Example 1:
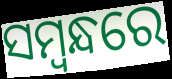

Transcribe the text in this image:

ସମ୍ବନ୍ଧରେ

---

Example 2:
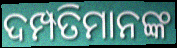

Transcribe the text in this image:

ଦମ୍ପତିମାନଙ୍କ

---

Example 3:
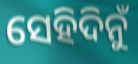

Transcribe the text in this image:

ସେହିଦିନୁଁ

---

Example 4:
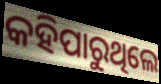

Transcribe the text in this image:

କହିପାରୁଥିଲେ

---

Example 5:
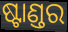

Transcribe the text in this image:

ଷ୍ଟାଣ୍ଡର